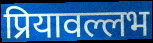
प्रियावल्लभ